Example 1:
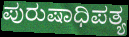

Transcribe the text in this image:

ಪುರುಷಾಧಿಪತ್ಯ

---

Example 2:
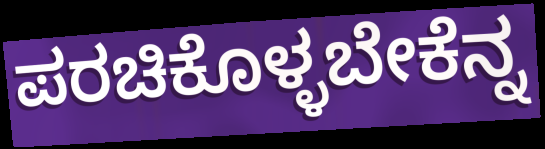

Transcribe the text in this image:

ಪರಚಿಕೊಳ್ಳಬೇಕೆನ್ನ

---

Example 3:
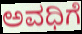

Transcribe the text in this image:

ಅವಧಿಗೆ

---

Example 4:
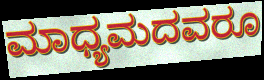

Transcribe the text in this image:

ಮಾಧ್ಯಮದವರೂ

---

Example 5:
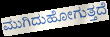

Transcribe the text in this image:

ಮುಗಿದುಹೋಗುತ್ತದೆ